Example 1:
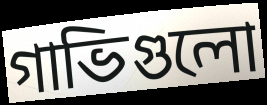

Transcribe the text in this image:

গাভিগুলো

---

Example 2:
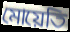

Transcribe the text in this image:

মোয়েতি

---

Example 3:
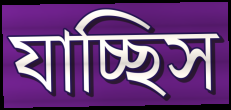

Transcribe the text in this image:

যাচ্ছিস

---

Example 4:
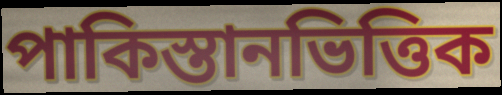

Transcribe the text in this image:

পাকিস্তানভিত্তিক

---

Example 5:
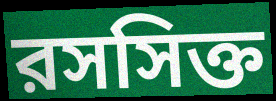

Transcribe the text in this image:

রসসিক্ত